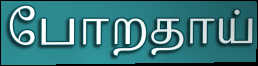
போறதாய்